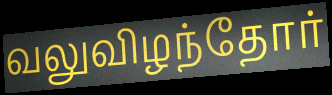
வலுவிழந்தோர்